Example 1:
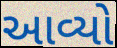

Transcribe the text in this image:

આવ્યો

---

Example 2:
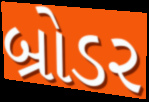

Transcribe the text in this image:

બ્રોડર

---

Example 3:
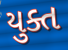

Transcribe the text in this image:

યુક્ત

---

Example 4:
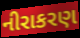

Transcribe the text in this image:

નીરાકરણ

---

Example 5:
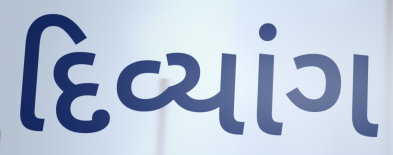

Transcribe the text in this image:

દિવ્યાંગ